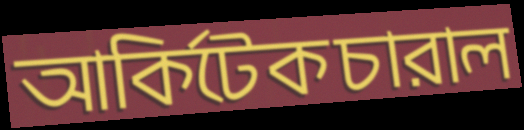
আর্কিটেকচারাল